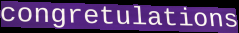
congretulations